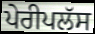
ਪੇਰੀਪਲੱਸ